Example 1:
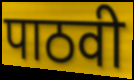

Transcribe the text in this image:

पाठवी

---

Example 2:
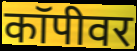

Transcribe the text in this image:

कॉपीवर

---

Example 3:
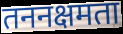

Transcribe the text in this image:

तननक्षमता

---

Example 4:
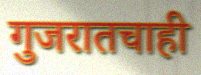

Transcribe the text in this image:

गुजरातचाही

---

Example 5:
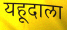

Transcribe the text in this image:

यहूदाला